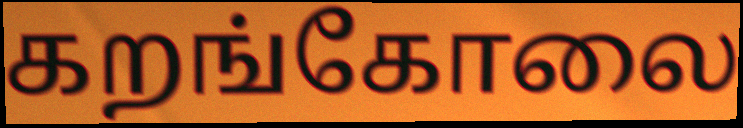
கறங்கோலை